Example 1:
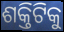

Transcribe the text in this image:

ଶକ୍ତିଟିକୁ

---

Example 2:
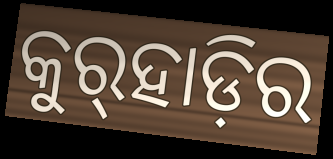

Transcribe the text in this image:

କୁର୍‍ହାଡ଼ିର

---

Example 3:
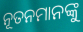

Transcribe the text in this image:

ନୂତନମାନଙ୍କୁ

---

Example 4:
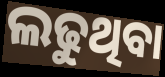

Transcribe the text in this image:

ଲଢୁଥିବା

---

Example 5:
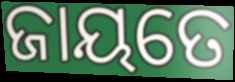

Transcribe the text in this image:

ଜାୟତେ